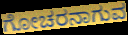
ಗೋಚರನಾಗುವ